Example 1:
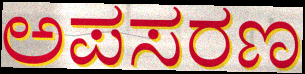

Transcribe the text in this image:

ಅಪಸರಣ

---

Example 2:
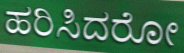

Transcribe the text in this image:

ಹರಿಸಿದರೋ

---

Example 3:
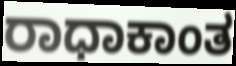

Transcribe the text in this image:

ರಾಧಾಕಾಂತ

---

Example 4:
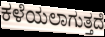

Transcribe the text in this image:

ಕಳೆಯಲಾಗುತ್ತದೆ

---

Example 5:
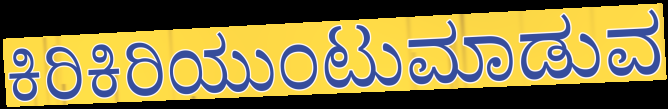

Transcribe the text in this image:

ಕಿರಿಕಿರಿಯುಂಟುಮಾಡುವ